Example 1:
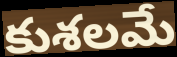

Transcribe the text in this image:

కుశలమే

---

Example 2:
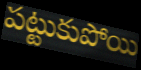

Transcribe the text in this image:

పట్టుకుపోయి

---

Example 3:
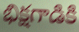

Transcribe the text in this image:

భిక్షగాడికి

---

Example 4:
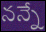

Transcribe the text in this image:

నన్నే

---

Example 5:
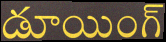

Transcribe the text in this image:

డూయింగ్